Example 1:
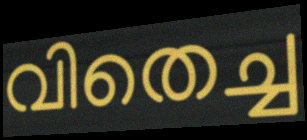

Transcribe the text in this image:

വിതെച്ച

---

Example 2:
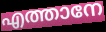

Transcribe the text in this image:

എത്താനേ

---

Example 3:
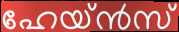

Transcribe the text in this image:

ഹേയ്ൻസ്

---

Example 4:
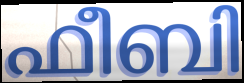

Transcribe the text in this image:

ഫീബി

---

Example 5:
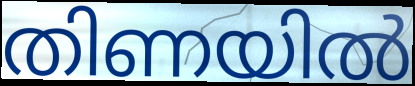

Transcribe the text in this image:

തിണയിൽ